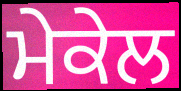
ਮੇਕੇਲ